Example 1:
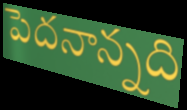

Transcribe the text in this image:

పెదనాన్నది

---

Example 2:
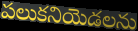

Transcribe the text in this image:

పలుకనియెడలను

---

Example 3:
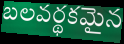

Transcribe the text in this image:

బలవర్థకమైన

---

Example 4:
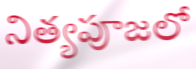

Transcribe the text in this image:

నిత్యపూజలో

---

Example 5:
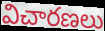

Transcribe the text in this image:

విచారణలు